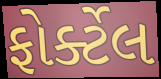
ફોર્ક્ટેલ